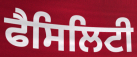
ਫੈਸਿਲਿਟੀ